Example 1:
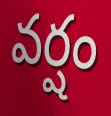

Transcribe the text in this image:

వర్షం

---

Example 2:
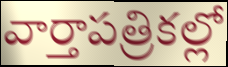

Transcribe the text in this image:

వార్తాపత్రికల్లో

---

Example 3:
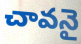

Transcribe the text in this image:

చావనై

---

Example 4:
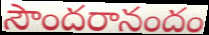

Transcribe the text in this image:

సౌందరానందం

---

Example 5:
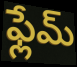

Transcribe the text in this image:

ఫ్లేమ్